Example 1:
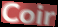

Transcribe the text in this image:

Coir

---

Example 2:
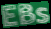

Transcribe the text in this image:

EBs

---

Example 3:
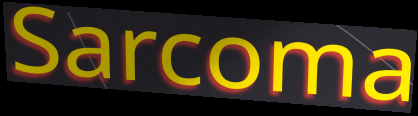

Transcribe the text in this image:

Sarcoma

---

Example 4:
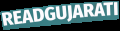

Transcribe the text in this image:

READGUJARATI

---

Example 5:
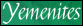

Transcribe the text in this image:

Yemenites